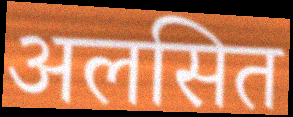
अलसित